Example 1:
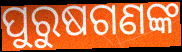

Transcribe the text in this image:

ପୁରୁଷଗଣଙ୍କ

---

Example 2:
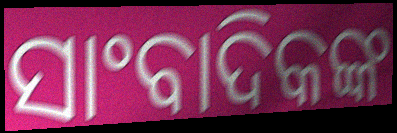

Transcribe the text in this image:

ସାଂବାଦିକଙ୍କ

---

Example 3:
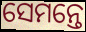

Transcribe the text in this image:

ସେମନ୍ତେ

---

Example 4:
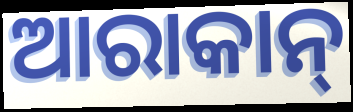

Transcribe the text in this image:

ଆରାକାନ୍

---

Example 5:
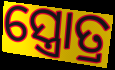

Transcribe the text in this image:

ସ୍ତ୍ରୋତ୍ର